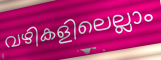
വഴികളിലെല്ലാം